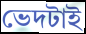
ভেদটাই